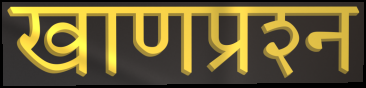
खाणप्रश्न